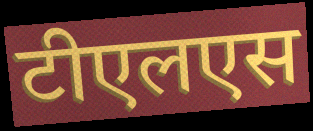
टीएलएस